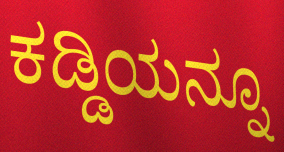
ಕಡ್ಡಿಯನ್ನೂ